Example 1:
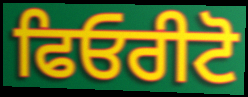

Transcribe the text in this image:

ਫਿਓਰੀਟੋ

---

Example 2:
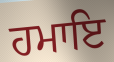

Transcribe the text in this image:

ਹਮਾਇ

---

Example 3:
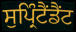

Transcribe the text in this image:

ਸੁਪ੍ਰਿੰਟੈਂਡੈਂਟ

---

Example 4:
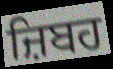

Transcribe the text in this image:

ਜ਼ਿਬਹ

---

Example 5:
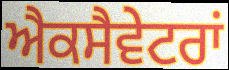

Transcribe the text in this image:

ਐਕਸੈਵੇਟਰਾਂ